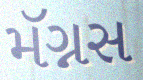
મૅગ્નસ